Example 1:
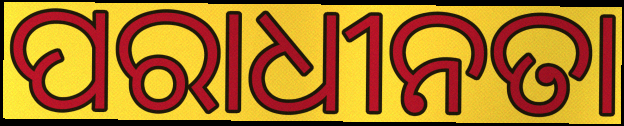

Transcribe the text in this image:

ପରାଧୀନତା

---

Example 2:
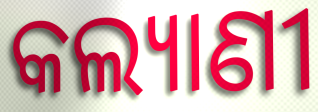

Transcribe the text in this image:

କଲ୍ୟାଣୀ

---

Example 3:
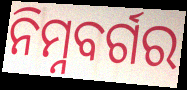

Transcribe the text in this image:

ନିମ୍ନବର୍ଗର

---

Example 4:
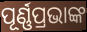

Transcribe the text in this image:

ପୂର୍ଣ୍ଣପ୍ରଭାଙ୍କ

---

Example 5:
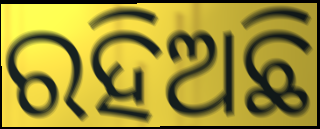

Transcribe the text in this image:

ରହିଅଛି